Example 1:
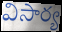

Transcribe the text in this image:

విసార్య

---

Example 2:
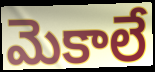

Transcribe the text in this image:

మెకాలే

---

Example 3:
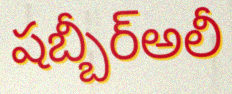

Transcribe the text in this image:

షబ్బీర్అలీ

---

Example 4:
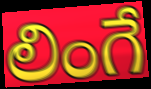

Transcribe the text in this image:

లింగే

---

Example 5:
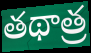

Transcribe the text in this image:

తథాత్ర